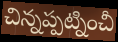
చిన్నప్పట్నించీ